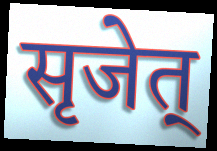
सृजेत्